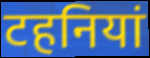
टहनियां